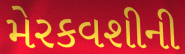
મેરકવશીની